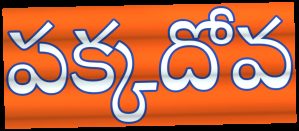
పక్కదోవ